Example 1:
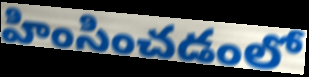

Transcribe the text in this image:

హింసించడంలో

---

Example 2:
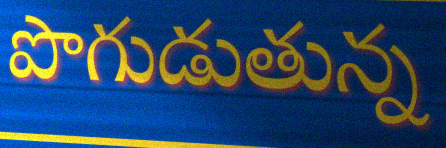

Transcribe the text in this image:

పొగుడుతున్న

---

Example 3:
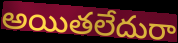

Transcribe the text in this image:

అయితలేదురా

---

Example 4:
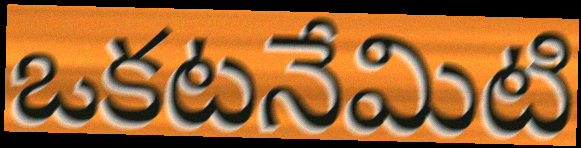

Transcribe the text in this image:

ఒకటనేమిటి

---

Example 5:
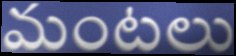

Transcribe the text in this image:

మంటలు